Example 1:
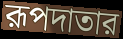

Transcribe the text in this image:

রূপদাতার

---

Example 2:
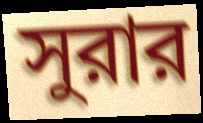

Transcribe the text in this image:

সুরার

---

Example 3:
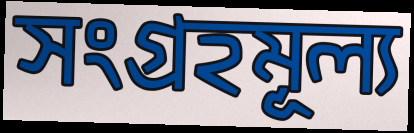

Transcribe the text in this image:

সংগ্রহমূল্য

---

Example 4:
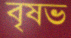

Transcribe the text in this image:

বৃষভ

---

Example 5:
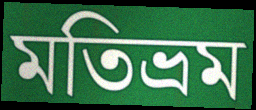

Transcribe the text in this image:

মতিভ্রম